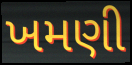
ખમણી